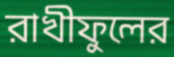
রাখীফুলের